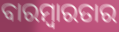
ବାରମ୍ବାରତାର